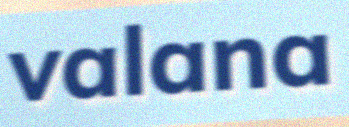
valana